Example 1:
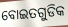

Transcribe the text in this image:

ବୋଇତଗୁଡିକ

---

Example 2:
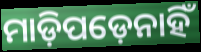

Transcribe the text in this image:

ମାଡ଼ିପଡ଼େନାହିଁ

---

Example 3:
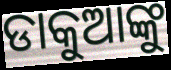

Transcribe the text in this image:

ଡାକୁଆଙ୍କୁ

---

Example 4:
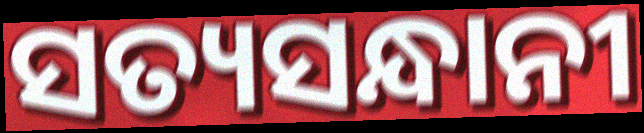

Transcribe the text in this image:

ସତ୍ୟସନ୍ଧାନୀ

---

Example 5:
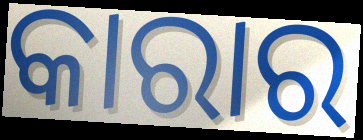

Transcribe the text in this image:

କାରାର